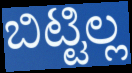
ಬಿಟ್ಟಿಲ್ಲ